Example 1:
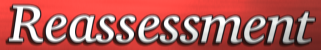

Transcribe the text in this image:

Reassessment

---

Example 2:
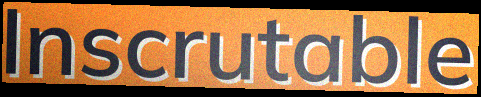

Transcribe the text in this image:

Inscrutable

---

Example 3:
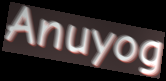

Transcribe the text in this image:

Anuyog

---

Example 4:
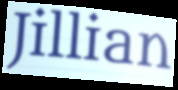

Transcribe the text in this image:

Jillian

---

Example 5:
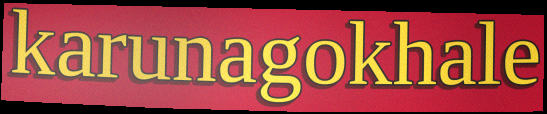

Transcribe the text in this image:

karunagokhale